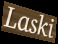
Laski